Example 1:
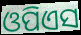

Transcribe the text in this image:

ଓପିଏସ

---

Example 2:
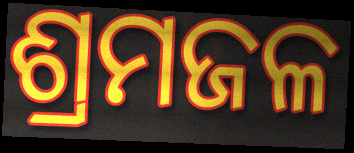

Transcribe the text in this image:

ଶ୍ରମଜଳ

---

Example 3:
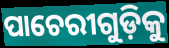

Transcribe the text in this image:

ପାଚେରୀଗୁଡ଼ିକୁ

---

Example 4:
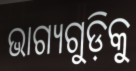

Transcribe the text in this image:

ଭାଗ୍ୟଗୁଡ଼ିକୁ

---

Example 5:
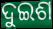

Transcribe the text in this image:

ଦୁଇଶ